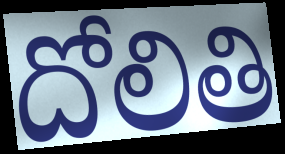
దోలితి